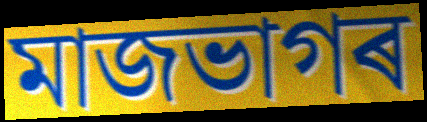
মাজভাগৰ